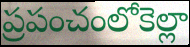
ప్రపంచంలోకెల్లా